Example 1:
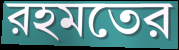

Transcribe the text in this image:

রহমতের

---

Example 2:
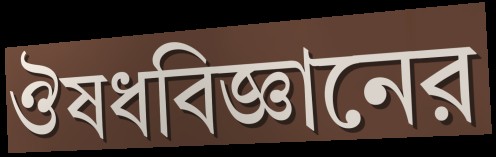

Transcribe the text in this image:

ঔষধবিজ্ঞানের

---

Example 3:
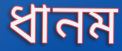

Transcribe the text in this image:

ধানম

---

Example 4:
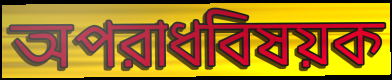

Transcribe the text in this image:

অপরাধবিষয়ক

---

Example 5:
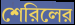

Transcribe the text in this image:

শেরিলের